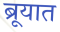
ब्रूयात